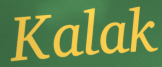
Kalak